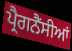
ਪ੍ਰੈਗਨੈਂਸੀਆਂ